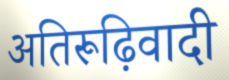
अतिरूढ़िवादी